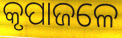
କୃପାଜଳେ